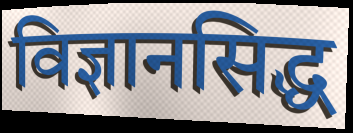
विज्ञानसिद्ध